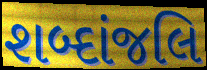
શબ્દાંજલિ